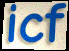
icf